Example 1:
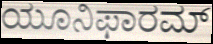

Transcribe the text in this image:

ಯೂನಿಫಾರಮ್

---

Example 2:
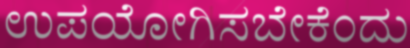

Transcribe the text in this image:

ಉಪಯೋಗಿಸಬೇಕೆಂದು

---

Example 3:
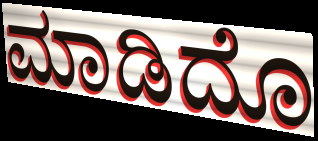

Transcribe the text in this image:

ಮಾಡಿದೊ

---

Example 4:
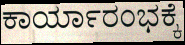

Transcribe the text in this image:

ಕಾರ್ಯಾರಂಭಕ್ಕೆ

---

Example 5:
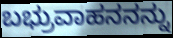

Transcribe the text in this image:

ಬಭ್ರುವಾಹನನನ್ನು